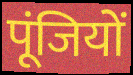
पूंजियों